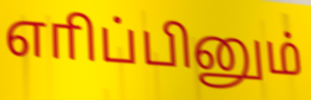
எரிப்பினும்